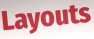
Layouts